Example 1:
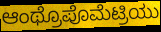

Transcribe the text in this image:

ಆಂಥ್ರೊಪೊಮೆಟ್ರಿಯು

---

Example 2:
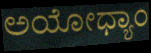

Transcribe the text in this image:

ಅಯೋಧ್ಯಾಂ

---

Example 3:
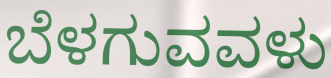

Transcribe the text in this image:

ಬೆಳಗುವವಳು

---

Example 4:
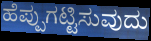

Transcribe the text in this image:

ಹೆಪ್ಪುಗಟ್ಟಿಸುವುದು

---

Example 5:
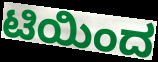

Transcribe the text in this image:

ಟಿಯಿಂದ